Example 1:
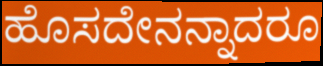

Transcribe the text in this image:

ಹೊಸದೇನನ್ನಾದರೂ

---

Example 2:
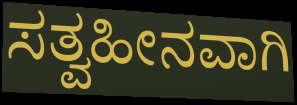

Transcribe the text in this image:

ಸತ್ವಹೀನವಾಗಿ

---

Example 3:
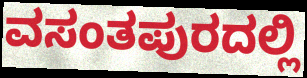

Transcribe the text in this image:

ವಸಂತಪುರದಲ್ಲಿ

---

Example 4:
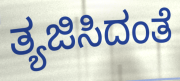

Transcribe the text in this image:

ತ್ಯಜಿಸಿದಂತೆ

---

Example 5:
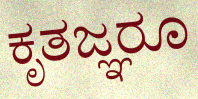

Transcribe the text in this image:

ಕೃತಜ್ಞರೂ